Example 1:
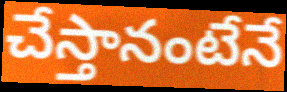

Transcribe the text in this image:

చేస్తానంటేనే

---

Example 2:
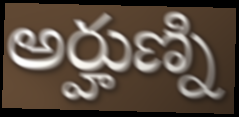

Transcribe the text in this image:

అర్హుణ్ని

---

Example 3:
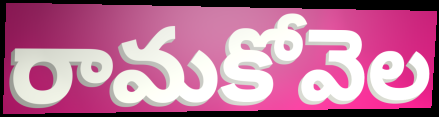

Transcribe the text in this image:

రామకోవెల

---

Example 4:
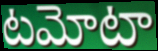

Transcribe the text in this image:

టమోటా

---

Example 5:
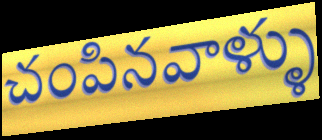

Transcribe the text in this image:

చంపినవాళ్ళు